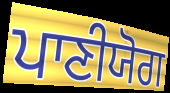
ਪਾਣੀਯੋਗ